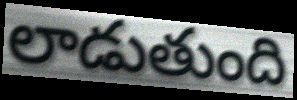
లాడుతుంది